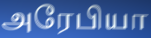
அரேபியா